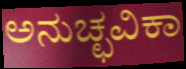
ಅನುಚ್ಛವಿಕಾ